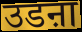
उडऩा